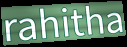
rahitha